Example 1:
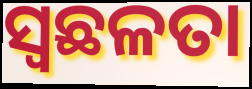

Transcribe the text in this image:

ସ୍ଵଛଳତା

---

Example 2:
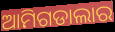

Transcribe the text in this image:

ଆମିଗଡାଲାର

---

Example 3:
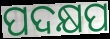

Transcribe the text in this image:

ପଦକ୍ଷପ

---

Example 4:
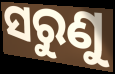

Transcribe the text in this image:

ସରୁଣୁ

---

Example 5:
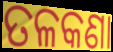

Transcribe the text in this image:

ତଳକଣା